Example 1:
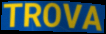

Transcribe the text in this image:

TROVA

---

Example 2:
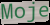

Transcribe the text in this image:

Moje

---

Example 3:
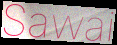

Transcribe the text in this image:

Sawai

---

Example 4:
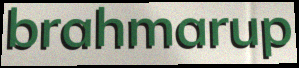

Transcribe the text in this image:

brahmarup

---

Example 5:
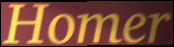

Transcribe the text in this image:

Homer